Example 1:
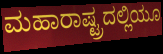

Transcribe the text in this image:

ಮಹಾರಾಷ್ಟ್ರದಲ್ಲಿಯೂ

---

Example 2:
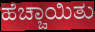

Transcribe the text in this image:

ಹೆಚ್ಚಾಯಿತು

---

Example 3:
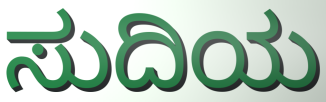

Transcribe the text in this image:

ಸುದಿಯ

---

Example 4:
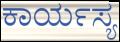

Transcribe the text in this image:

ಕಾರ್ಯಸ್ಯ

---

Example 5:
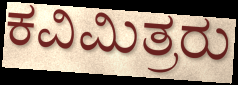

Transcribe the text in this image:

ಕವಿಮಿತ್ರರು